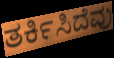
ತರ್ಕಿಸಿದೆವು